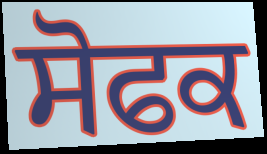
ਸੋਫਕ